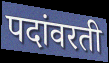
पदांवरती